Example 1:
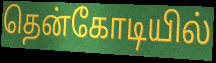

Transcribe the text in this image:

தென்கோடியில்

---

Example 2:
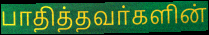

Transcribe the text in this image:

பாதித்தவர்களின்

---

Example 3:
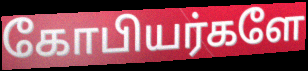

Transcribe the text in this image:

கோபியர்களே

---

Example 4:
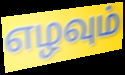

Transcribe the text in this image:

எழவும்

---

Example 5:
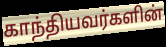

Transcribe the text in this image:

காந்தியவர்களின்